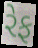
રેફ